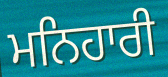
ਮਨਿਹਾਰੀ